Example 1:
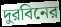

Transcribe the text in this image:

দুরবিনের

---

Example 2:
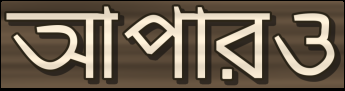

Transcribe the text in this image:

আপারও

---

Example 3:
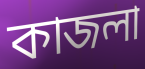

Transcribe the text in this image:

কাজলা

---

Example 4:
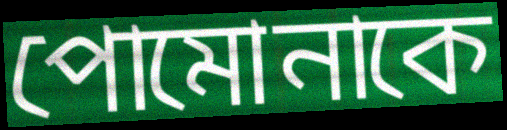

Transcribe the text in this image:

পোমোনাকে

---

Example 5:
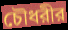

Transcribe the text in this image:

চৌধরীর